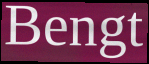
Bengt